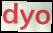
dyo